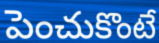
పెంచుకొంటే